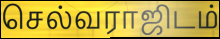
செல்வராஜிடம்